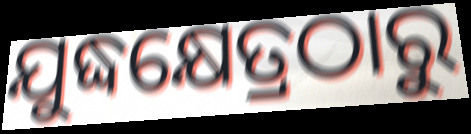
ଯୁଦ୍ଧକ୍ଷେତ୍ରଠାରୁ